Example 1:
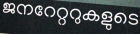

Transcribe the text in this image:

ജനറേറ്ററുകളുടെ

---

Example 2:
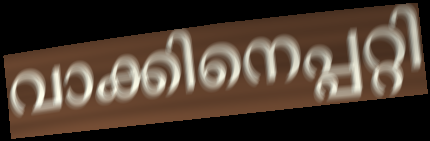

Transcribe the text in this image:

വാക്കിനെപ്പറ്റി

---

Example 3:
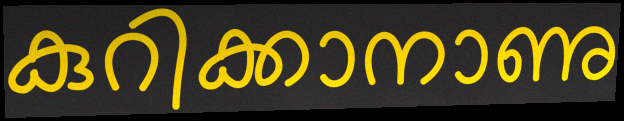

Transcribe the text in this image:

കുറിക്കാനാണു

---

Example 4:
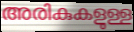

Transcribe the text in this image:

അരികുകളുള്ള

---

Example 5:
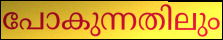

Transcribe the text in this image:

പോകുന്നതിലും